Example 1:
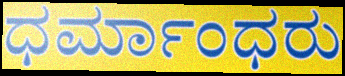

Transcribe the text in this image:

ಧರ್ಮಾಂಧರು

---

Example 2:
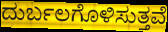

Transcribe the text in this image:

ದುರ್ಬಲಗೊಳಿಸುತ್ತವೆ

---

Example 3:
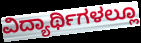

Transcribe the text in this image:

ವಿದ್ಯಾರ್ಥಿಗಳಲ್ಲೂ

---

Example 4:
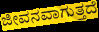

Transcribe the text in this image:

ಜೀವನವಾಗುತ್ತದೆ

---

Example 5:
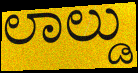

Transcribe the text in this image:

ಲಾಲ್ಡು